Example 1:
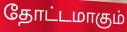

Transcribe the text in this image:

தோட்டமாகும்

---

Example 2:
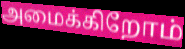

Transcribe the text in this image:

அமைக்கிறோம்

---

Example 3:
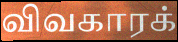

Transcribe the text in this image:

விவகாரக்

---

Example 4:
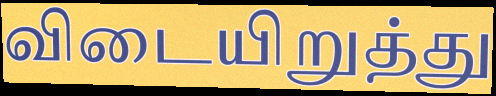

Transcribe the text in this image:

விடையிறுத்து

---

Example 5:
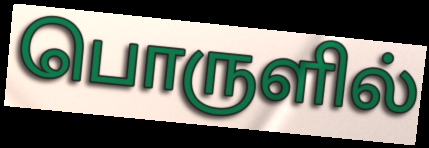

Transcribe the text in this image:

பொருளில்